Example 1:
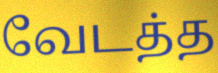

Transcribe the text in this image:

வேடத்த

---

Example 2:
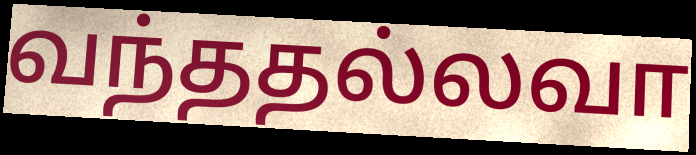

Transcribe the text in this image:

வந்ததல்லவா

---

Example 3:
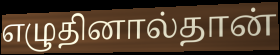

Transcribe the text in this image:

எழுதினால்தான்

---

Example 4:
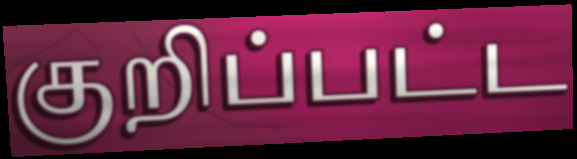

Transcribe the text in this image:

குறிப்பட்ட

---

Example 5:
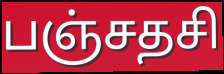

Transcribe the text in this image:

பஞ்சதசி